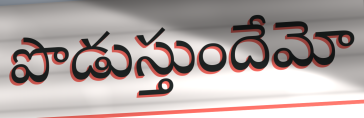
పొడుస్తుందేమో